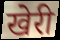
खेरी